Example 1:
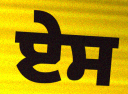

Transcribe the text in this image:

ਏਸ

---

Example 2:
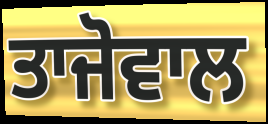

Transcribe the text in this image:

ਤਾਜੋਵਾਲ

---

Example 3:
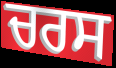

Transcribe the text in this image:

ਚਰਸ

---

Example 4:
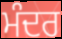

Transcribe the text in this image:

ਮੰਦਰ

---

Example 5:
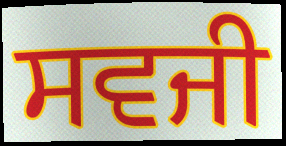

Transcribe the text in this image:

ਸਵਜੀ